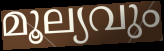
മൂല്യവും